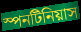
স্পনটিনিয়াস